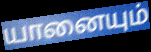
யானையும்